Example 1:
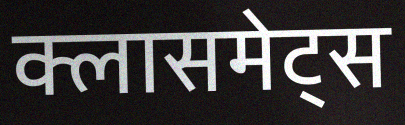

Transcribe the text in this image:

क्लासमेट्स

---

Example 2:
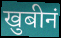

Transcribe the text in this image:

खुबीनं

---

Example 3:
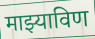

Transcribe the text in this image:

माझ्याविण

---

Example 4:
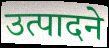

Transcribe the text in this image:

उत्पादने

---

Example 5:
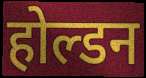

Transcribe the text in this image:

होल्डन